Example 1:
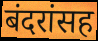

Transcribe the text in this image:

बंदरांसह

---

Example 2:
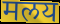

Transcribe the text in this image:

मलय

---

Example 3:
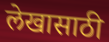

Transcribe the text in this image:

लेखासाठी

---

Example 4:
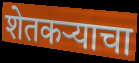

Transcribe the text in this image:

शेतकऱ्याचा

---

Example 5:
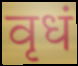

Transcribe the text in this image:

वृधं